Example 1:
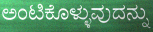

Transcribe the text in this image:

ಅಂಟಿಕೊಳ್ಳುವುದನ್ನು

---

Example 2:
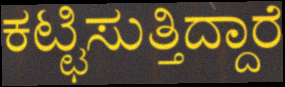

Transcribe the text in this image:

ಕಟ್ಟಿಸುತ್ತಿದ್ದಾರೆ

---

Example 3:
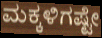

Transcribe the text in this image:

ಮಕ್ಕಳಿಗಷ್ಟೇ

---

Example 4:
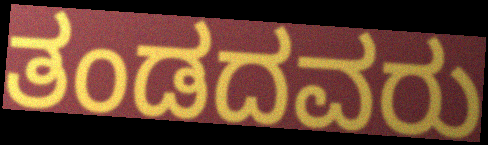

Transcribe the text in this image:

ತಂಡದವರು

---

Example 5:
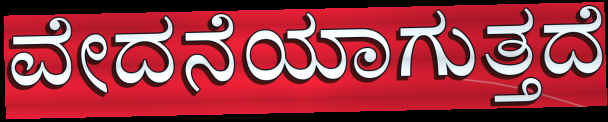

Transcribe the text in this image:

ವೇದನೆಯಾಗುತ್ತದೆ